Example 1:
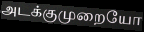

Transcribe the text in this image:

அடக்குமுறையோ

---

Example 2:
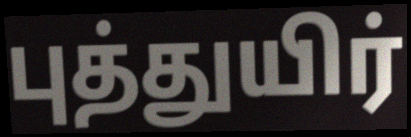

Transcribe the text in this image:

புத்துயிர்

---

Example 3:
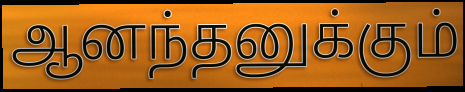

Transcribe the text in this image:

ஆனந்தனுக்கும்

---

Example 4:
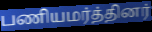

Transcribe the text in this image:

பணியமர்த்தினர்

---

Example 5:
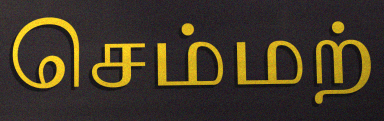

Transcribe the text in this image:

செம்மற்